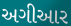
અગીઆર